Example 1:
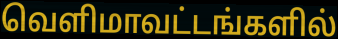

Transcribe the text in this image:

வெளிமாவட்டங்களில்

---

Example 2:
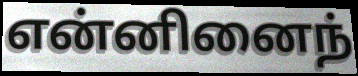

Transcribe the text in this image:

என்னினைந்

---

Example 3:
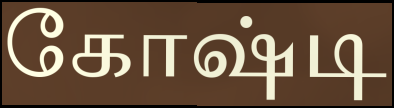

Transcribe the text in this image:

கோஷ்டி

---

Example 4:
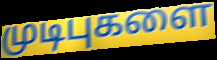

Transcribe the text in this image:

முடிபுகளை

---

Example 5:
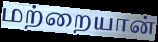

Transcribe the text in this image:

மற்றையான்